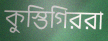
কুস্তিগিররা